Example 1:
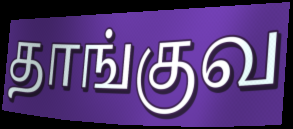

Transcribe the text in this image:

தாங்குவ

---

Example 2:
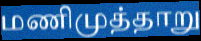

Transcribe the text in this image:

மணிமுத்தாறு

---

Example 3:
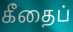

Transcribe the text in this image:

கீதைப்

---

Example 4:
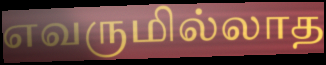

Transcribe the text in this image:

எவருமில்லாத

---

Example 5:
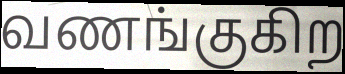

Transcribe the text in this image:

வணங்குகிற